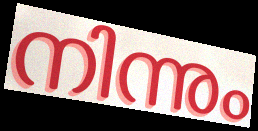
നിന്നും